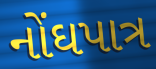
નોંઘપાત્ર